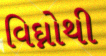
વિઘ્નોથી